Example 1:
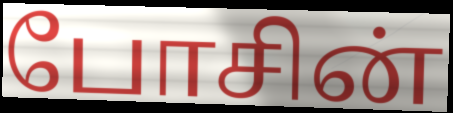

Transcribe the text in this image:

போசின்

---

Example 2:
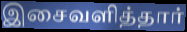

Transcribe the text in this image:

இசைவளித்தார்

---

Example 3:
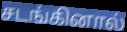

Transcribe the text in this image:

சடங்கினால்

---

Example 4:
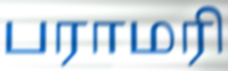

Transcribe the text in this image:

பராமரி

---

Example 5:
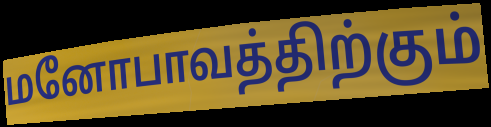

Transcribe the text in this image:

மனோபாவத்திற்கும்